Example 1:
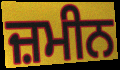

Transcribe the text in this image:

ਜ਼ਮੀਨ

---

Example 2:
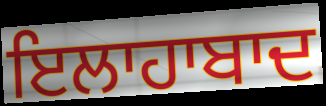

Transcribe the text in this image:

ਇਲਾਹਾਬਾਦ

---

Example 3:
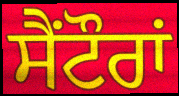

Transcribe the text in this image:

ਸੈਂਟੌਰਾਂ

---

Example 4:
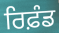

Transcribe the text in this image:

ਰਿਫ਼ੰਡ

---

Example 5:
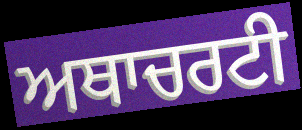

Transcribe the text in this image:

ਅਥਾਚਰਟੀ